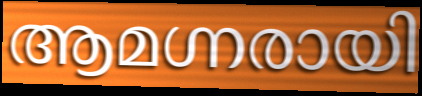
ആമഗ്നരായി